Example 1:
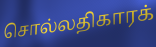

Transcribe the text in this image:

சொல்லதிகாரக்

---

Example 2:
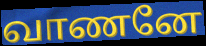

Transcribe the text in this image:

வாணனே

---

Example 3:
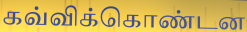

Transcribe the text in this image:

கவ்விக்கொண்டன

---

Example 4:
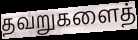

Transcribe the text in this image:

தவறுகளைத்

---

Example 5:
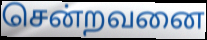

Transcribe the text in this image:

சென்றவனை